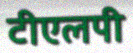
टीएलपी